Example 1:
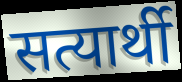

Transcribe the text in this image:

सत्यार्थी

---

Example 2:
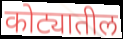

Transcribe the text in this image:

कोट्यातील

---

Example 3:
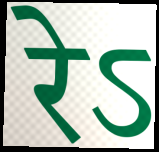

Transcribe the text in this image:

रेऽ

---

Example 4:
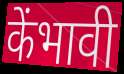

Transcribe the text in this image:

केंभावी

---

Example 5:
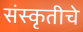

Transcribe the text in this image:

संस्कृतीचे